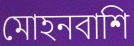
মোহনবাশি